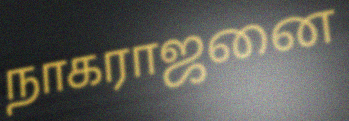
நாகராஜனை